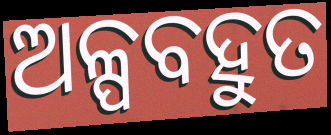
ଅଳ୍ପବହୁତ